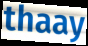
thaay